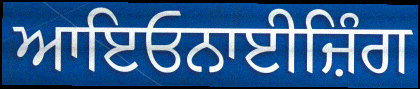
ਆਇਓਨਾਈਜ਼ਿੰਗ